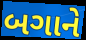
બગાને